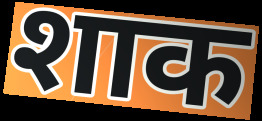
शाक